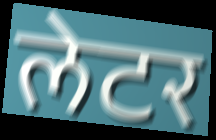
लेटर